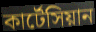
কার্টেসিয়ান